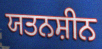
ਯਤਨਸ਼ੀਨ